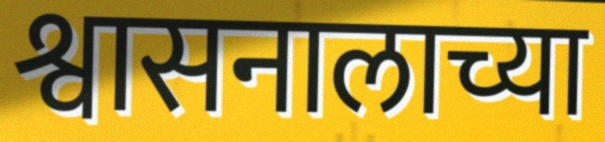
श्वासनालाच्या